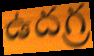
ఉదగ్ర